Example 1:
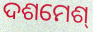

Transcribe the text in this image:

ଦଶମେଶ୍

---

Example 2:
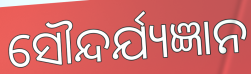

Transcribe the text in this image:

ସୌନ୍ଦର୍ଯ୍ୟଜ୍ଞାନ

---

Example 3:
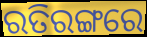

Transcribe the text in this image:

ରତିରଙ୍ଗରେ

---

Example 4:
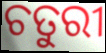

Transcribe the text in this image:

ଚତୁରୀ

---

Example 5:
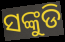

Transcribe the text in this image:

ସଙ୍କୁଡି